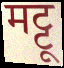
मट्टू